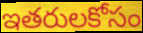
ఇతరులకోసం